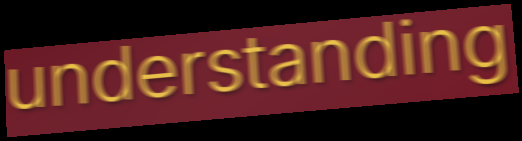
understanding